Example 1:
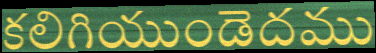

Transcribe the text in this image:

కలిగియుండెదము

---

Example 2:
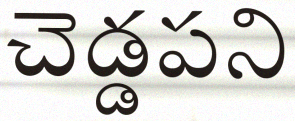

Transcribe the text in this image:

చెడ్డపని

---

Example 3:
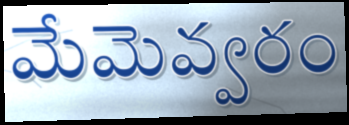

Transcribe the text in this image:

మేమెవ్వరం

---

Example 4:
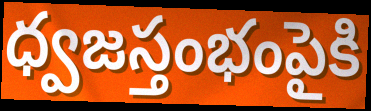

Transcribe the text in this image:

ధ్వజస్తంభంపైకి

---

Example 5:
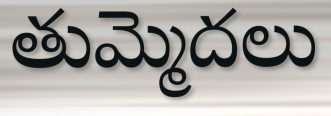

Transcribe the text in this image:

తుమ్మెదలు